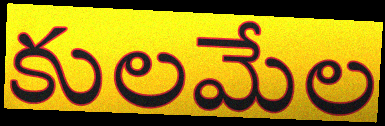
కులమేల